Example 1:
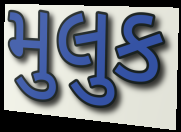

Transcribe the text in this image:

મુલુક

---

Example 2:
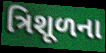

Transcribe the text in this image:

ત્રિશૂળના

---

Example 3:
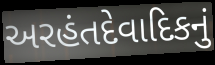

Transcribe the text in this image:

અરહંતદેવાદિકનું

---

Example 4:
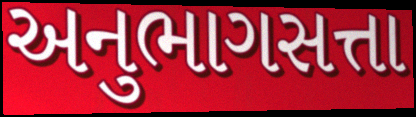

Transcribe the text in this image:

અનુભાગસત્તા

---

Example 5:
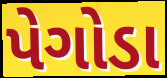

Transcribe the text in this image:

પેગોડા